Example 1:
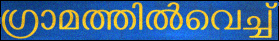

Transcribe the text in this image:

ഗ്രാമത്തിൽവെച്ച്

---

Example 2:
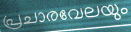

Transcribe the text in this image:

പ്രചാരവേലയും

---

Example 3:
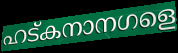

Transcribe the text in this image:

ഹട്കനാനഗളെ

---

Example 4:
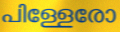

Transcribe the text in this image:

പിള്ളേരോ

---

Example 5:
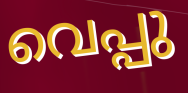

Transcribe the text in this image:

വെപ്പു